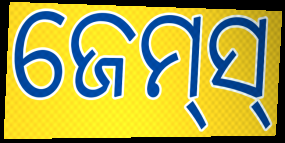
ଜେମ୍‌ସ୍